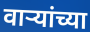
वाऱ्यांच्या